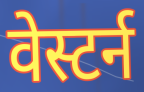
वेस्टर्न